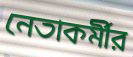
নেতাকর্মীর